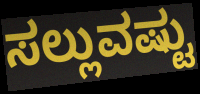
ಸಲ್ಲುವಷ್ಟು